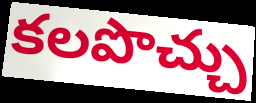
కలపొచ్చు